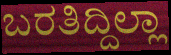
ಬರತಿದ್ದಿಲ್ಲಾ